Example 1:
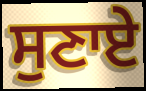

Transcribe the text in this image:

ਸੁਣਾਏ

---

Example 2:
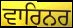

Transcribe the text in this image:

ਵਾਰਿਨਰ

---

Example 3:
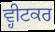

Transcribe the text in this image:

ਵ੍ਹੀਟਕਰ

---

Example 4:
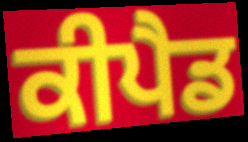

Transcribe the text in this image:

ਕੀਪੈਡ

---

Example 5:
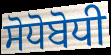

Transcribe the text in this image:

ਸੋਧੋਬੋਧੀ